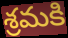
శ్రమకి